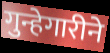
गुन्हेगारीने